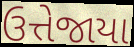
ઉત્તેજાયા